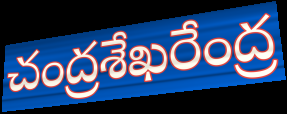
చంద్రశేఖరేంద్ర